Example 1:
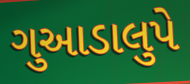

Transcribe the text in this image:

ગુઆડાલુપે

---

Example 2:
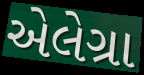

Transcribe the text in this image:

એલેગ્રા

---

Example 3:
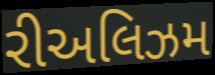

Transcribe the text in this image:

રીઅલિઝમ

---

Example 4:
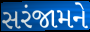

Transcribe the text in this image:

સરંજામને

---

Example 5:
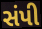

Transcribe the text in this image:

સંપી